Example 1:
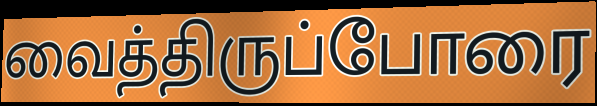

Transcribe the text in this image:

வைத்திருப்போரை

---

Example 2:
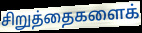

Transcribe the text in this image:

சிறுத்தைகளைக்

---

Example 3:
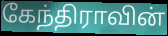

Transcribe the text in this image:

கேந்திராவின்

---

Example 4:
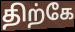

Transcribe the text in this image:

திற்கே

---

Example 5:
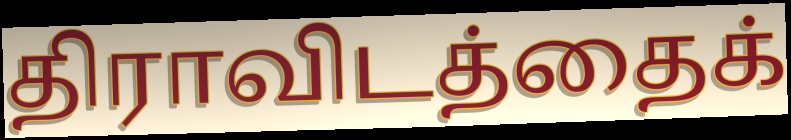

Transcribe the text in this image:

திராவிடத்தைக்